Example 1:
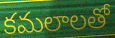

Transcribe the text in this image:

కమలాలతో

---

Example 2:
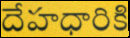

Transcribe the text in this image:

దేహధారికి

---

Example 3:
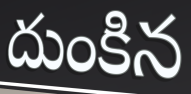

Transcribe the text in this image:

దుంకిన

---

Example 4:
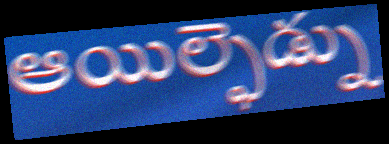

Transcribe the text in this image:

ఆయిల్ఫెడ్ను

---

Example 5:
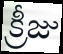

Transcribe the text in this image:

క్రీజు